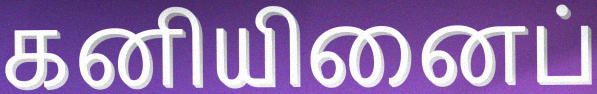
கனியினைப்